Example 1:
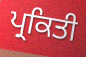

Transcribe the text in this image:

ਪ੍ਰਕਿਤੀ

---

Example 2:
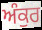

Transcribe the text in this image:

ਅੰਕੁਰ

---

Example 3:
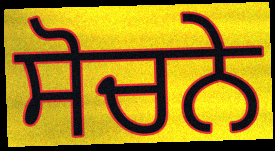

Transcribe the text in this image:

ਸੋਚਨੇ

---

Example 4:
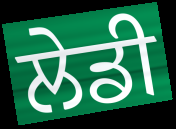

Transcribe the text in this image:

ਲੇਡੀ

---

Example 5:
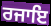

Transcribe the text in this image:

ਰਜਾਇ